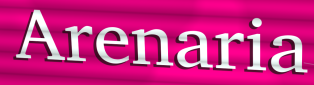
Arenaria